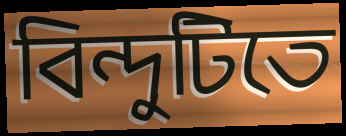
বিন্দুটিতে